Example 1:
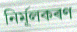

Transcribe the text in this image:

নিৰ্মূলকৰণ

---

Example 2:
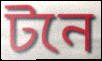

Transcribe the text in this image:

টনে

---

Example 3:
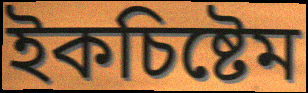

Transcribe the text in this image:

ইকচিষ্টেম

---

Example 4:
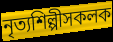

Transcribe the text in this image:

নৃত্যশিল্পীসকলক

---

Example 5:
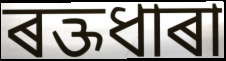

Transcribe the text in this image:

ৰক্তধাৰা